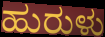
ಹುರುಳು